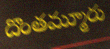
దొంతమ్మూరు